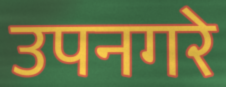
उपनगरे